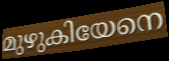
മുഴുകിയേനെ